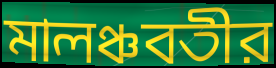
মালঞ্চবতীর